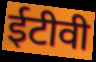
ईटीवी